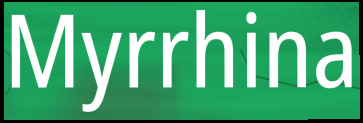
Myrrhina